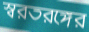
স্বরতরঙ্গের